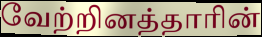
வேற்றினத்தாரின்